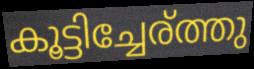
കൂട്ടിച്ചേര്ത്തു